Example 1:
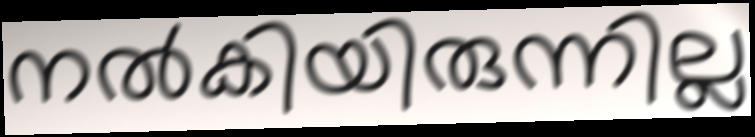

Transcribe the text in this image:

നൽകിയിരുന്നില്ല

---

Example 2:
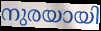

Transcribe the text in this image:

നുരയായി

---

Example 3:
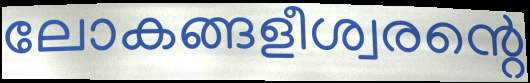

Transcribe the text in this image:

ലോകങ്ങളീശ്വരന്റെ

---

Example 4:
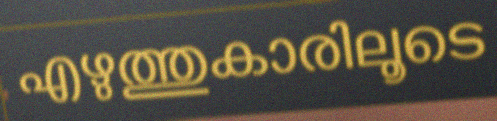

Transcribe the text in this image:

എഴുത്തുകാരിലൂടെ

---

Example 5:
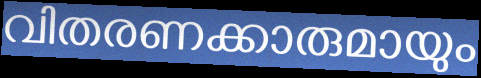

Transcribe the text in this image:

വിതരണക്കാരുമായും